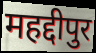
महद्दीपुर